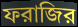
ফরাজির